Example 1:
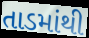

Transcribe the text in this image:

તાડમાંથી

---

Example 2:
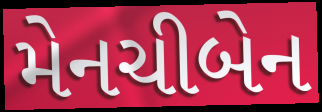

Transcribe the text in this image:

મેનચીબેન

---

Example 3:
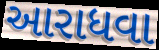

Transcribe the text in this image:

આરાધવા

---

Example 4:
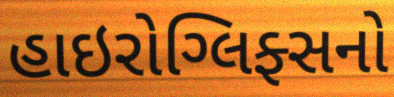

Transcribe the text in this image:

હાઇરોગ્લિફ્સનો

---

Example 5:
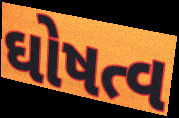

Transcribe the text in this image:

ઘોષત્વ